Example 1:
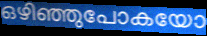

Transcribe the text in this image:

ഒഴിഞ്ഞുപോകയോ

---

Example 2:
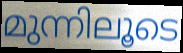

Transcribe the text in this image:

മുന്നിലൂടെ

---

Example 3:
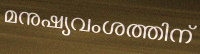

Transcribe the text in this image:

മനുഷ്യവംശത്തിന്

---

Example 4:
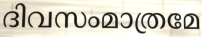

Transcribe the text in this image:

ദിവസംമാത്രമേ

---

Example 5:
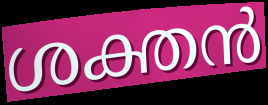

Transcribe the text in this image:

ശക്തൻ